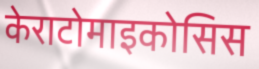
केराटोमाइकोसिस